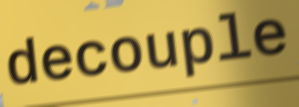
decouple